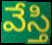
వేస్తి